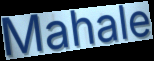
Mahale